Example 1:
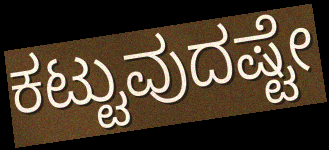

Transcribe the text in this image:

ಕಟ್ಟುವುದಷ್ಟೇ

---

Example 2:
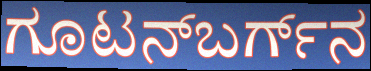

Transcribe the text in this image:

ಗೂಟನ್‌ಬರ್ಗ್‌ನ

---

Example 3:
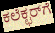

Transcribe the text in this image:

ಕಲೆಕ್ಟರ್‌ಗೆ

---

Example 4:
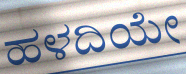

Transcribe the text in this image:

ಹಳದಿಯೇ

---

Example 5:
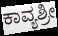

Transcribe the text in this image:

ಕಾವ್ಯಶ್ರೀ